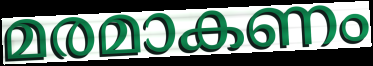
മരമാകണം